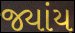
જ્યાંય